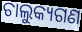
ଚାଲୁକ୍ୟଗଣ